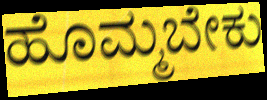
ಹೊಮ್ಮಬೇಕು